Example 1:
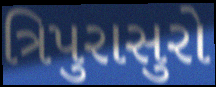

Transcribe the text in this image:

ત્રિપુરાસુરો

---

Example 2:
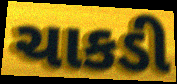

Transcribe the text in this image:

ચાકડી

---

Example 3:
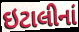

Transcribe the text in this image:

ઇટાલીનાં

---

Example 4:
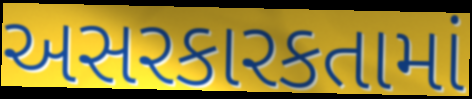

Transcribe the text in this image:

અસરકારકતામાં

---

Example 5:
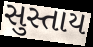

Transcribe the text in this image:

સુસ્તાય